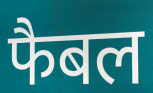
फैबल